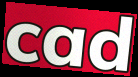
cad